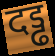
दड्ढ